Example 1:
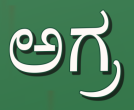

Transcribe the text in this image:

ಅಗ್ರ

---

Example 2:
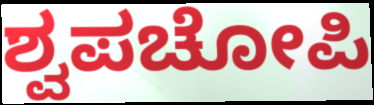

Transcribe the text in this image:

ಶ್ವಪಚೋಪಿ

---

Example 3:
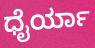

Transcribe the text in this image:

ಧೈರ್ಯಾ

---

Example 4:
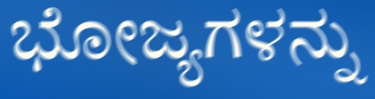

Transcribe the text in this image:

ಭೋಜ್ಯಗಳನ್ನು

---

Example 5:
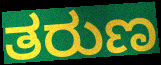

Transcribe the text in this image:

ತರುಣ